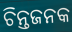
ଚିନ୍ତଜନକ